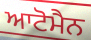
ਆਟੋਮੈਨ